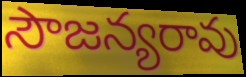
సౌజన్యరావు